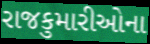
રાજકુમારીઓના